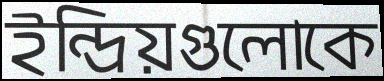
ইন্দ্রিয়গুলোকে